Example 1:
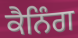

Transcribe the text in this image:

ਕੈਨਿੰਗ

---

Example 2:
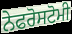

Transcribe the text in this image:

ਨੇਫਰੋਸਟੋਮੀ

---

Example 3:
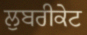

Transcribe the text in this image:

ਲੁਬਰੀਕੇਟ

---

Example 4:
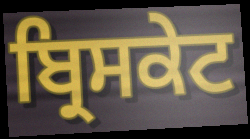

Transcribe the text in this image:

ਬ੍ਰਿਸਕੇਟ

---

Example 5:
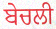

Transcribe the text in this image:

ਬੇਚਲੀ